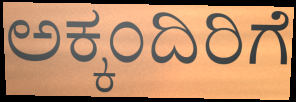
ಅಕ್ಕಂದಿರಿಗೆ